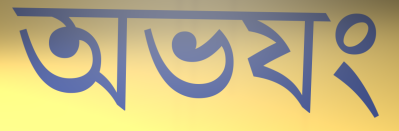
অভযং